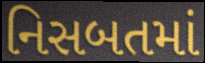
નિસબતમાં